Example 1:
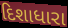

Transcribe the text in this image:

દિશાધારા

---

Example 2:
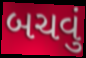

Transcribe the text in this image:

બચવું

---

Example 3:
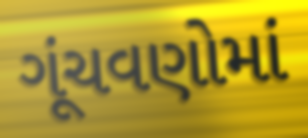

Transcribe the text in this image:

ગૂંચવણોમાં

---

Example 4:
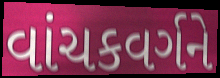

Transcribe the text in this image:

વાંચકવર્ગને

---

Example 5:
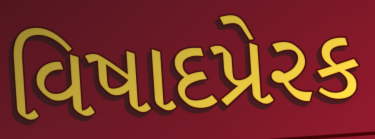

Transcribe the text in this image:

વિષાદપ્રેરક